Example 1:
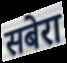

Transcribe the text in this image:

सबेरा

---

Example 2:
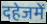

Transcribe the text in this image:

दहेजमें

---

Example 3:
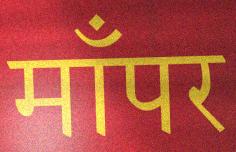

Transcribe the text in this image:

माँपर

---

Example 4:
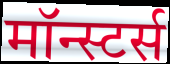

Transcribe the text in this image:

मॉन्स्टर्स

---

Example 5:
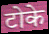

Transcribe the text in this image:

टोके